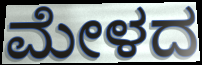
ಮೇಳದ